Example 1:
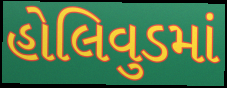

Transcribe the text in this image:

હોલિવુડમાં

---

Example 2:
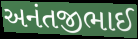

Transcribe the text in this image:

અનંતજીભાઈ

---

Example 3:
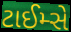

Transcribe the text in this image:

ટાઈમ્સે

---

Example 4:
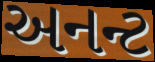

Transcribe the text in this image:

અનન્ટ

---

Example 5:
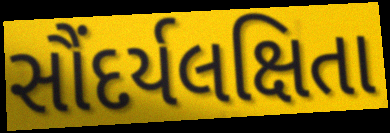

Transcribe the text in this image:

સૌંદર્યલક્ષિતા